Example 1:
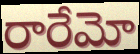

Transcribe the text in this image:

రారేమో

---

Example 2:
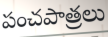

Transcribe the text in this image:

పంచపాత్రలు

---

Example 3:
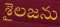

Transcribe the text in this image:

శైలజను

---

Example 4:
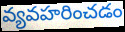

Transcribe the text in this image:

వ్యవహరించడం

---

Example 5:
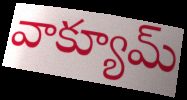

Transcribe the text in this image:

వాక్యూమ్